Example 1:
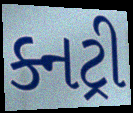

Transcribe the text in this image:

ક્નટ્રી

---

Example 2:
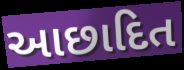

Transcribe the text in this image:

આછાદિત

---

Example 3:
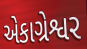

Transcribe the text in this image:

એકાગ્રેશ્વર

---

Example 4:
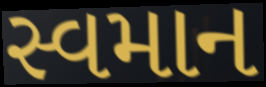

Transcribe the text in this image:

સ્વમાન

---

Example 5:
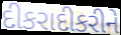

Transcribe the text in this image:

દીકરાદીકરીને